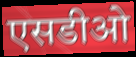
एसडीओ